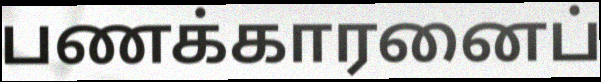
பணக்காரனைப்